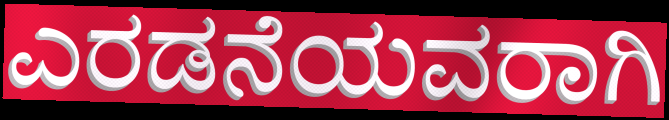
ಎರಡನೆಯವರಾಗಿ